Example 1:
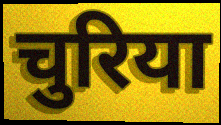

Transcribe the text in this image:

चुरिया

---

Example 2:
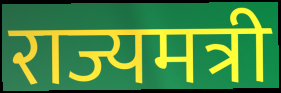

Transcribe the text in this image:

राज्यमत्री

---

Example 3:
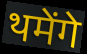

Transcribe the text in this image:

थमेंगे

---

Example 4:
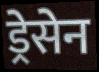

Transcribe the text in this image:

ड्रेसेन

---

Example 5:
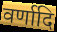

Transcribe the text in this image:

वर्णादि